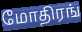
மோதிரங்